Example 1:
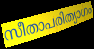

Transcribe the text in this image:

സീതാപരിത്യാഗം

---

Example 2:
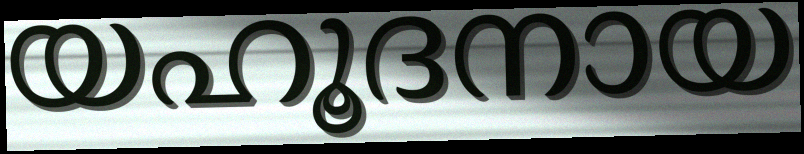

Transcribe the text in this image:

യഹൂദനായ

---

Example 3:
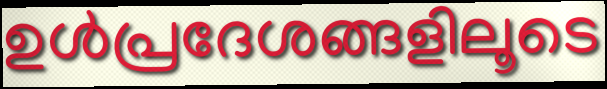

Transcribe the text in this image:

ഉൾപ്രദേശങ്ങളിലൂടെ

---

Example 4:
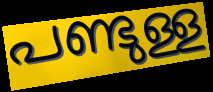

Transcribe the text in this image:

പണ്ടുള്ള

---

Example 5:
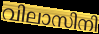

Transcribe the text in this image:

വിലാസിനി